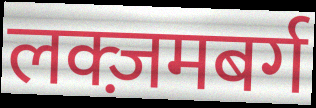
लक्ज़मबर्ग